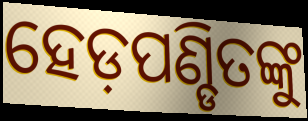
ହେଡ଼ପଣ୍ଡିତଙ୍କୁ